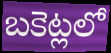
బకెట్లలో